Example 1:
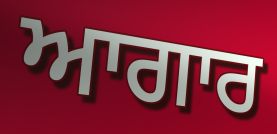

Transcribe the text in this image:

ਆਗਾਰ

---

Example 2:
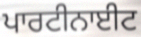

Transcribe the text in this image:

ਪਾਰਟੀਨਾਈਟ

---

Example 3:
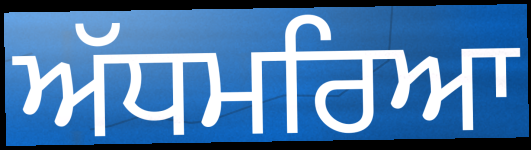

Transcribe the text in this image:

ਅੱਧਮਰਿਆ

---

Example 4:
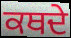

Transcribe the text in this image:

ਕਥਦੇ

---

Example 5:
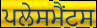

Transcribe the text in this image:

ਪਲੇਸਮੈਂਟਸ